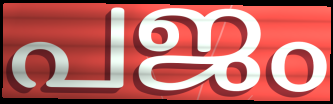
പജം